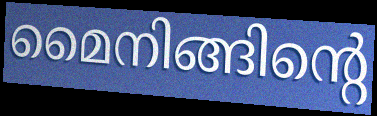
മൈനിങ്ങിന്റെ